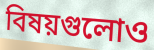
বিষয়গুলোও